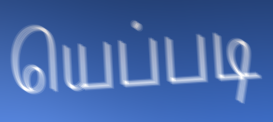
யெப்படி